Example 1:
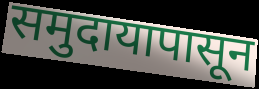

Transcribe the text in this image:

समुदायापासून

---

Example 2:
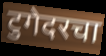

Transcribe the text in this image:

टुगेदरचा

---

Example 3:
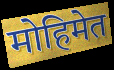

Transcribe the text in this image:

मोहिमेत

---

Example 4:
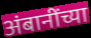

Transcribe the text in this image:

अंबानींच्या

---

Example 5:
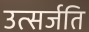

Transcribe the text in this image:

उत्सर्जति